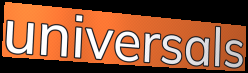
universals